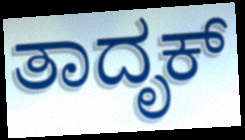
ತಾದೃಕ್